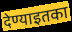
देण्याइतका